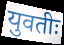
युवतीः